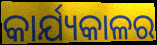
କାର୍ଯ୍ୟକାଳର